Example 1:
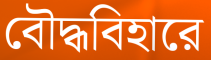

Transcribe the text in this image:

বৌদ্ধবিহারে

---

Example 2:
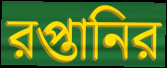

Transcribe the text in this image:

রপ্তানির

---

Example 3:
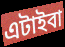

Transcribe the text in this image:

এটাইবা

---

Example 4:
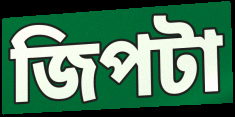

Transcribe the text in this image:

জিপটা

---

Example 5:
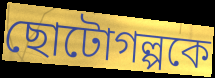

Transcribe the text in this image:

ছোটোগল্পকে